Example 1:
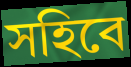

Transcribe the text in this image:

সহিবে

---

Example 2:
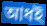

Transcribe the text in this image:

আধই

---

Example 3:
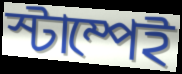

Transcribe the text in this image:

স্টাম্পেই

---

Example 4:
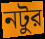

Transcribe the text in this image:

নটুর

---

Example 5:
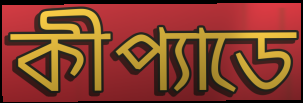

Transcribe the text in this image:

কীপ্যাডে